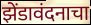
झेंडावंदनाचा